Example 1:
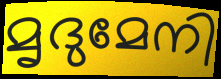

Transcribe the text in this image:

മൃദുമേനി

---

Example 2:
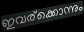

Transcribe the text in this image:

ഇവര്ക്കൊന്നും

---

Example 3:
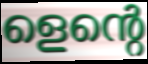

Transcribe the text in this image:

ളെന്റെ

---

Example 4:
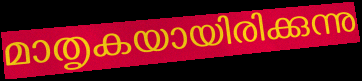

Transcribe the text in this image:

മാതൃകയായിരിക്കുന്നു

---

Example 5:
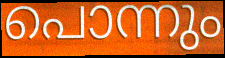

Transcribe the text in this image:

പൊന്നും